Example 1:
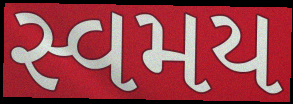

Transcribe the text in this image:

સ્વમય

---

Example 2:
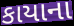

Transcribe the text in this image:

કાયાના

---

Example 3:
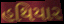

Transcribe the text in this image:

હથિયાર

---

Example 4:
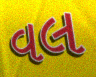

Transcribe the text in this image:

વલ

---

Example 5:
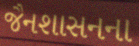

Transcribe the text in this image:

જૈનશાસનના